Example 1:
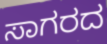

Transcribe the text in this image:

ಸಾಗರದ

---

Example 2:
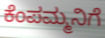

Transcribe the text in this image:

ಕೆಂಪಮ್ಮನಿಗೆ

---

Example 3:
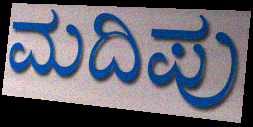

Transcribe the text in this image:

ಮದಿಪು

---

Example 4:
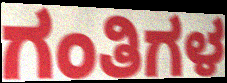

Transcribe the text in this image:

ಗಂತಿಗಳ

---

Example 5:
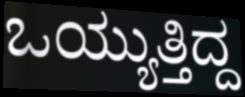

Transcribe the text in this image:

ಒಯ್ಯುತ್ತಿದ್ದ